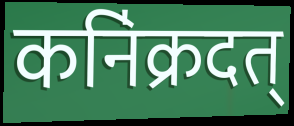
कनि॑क्रदत्